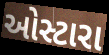
ઓસ્ટારા